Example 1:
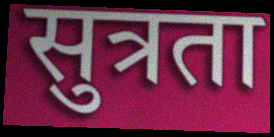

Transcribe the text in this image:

सुत्रता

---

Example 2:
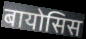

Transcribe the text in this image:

बायोसिस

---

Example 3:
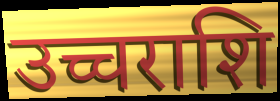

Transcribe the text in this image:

उच्चराशि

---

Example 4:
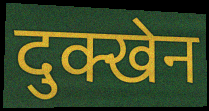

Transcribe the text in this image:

दुक्खेन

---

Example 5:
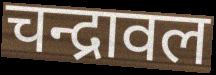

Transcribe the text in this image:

चन्द्रावल